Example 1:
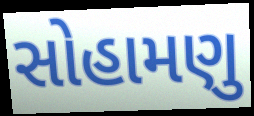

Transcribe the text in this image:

સોહામણુ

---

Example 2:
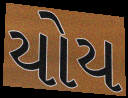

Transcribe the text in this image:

યોય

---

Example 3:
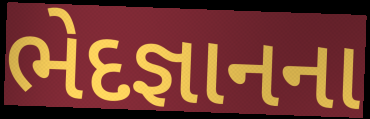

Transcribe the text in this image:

ભેદજ્ઞાનના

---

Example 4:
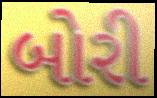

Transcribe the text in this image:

બોરી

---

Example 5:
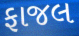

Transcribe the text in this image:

ફાજલ